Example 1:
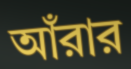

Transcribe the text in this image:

আঁরার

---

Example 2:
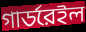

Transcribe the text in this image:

গার্ডরেইল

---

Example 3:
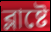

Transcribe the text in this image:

ব্লাষ্টে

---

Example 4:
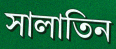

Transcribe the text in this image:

সালাতিন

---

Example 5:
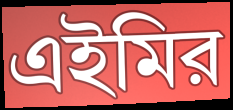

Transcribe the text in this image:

এইমির